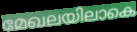
മേഖലയിലാകെ